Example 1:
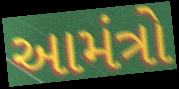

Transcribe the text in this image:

આમંત્રો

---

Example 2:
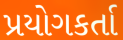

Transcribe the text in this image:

પ્રયોગકર્તા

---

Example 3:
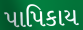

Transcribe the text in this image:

પાપિકાય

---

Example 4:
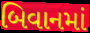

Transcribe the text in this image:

બિવાનમાં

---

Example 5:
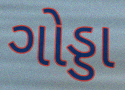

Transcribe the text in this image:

ગોડ્ડા